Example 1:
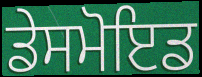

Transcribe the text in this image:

ਡੇਸਮੋਇਡ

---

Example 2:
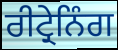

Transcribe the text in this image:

ਰੀਟ੍ਰੇਨਿੰਗ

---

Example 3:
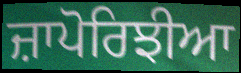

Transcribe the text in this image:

ਜ਼ਾਪੋਰਿਝੀਆ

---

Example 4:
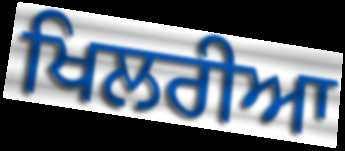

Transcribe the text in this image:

ਖਿਲਰੀਆ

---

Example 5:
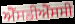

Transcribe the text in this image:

ਐੱਸਡੀਐੱਸਸੀ